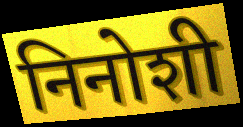
निनोशी